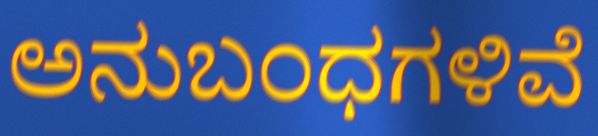
ಅನುಬಂಧಗಳಿವೆ